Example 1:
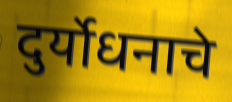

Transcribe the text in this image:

दुर्योधनाचे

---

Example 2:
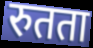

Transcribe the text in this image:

रुतता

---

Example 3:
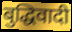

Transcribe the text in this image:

बुद्धिवादी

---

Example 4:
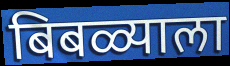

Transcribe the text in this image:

बिबळ्याला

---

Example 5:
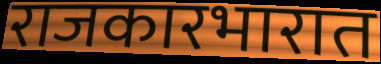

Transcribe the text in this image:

राजकारभारात